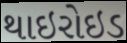
થાઇરોઇડ